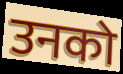
उनको